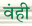
वंही